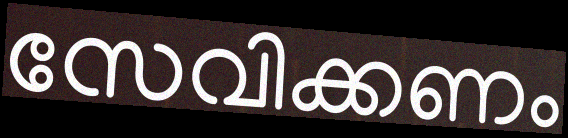
സേവിക്കണം